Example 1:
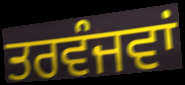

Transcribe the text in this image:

ਤਰਵੰਜਵਾਂ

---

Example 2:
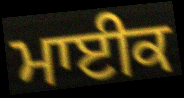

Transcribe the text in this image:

ਮਾਈਕ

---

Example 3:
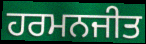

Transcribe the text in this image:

ਹਰਮਨਜੀਤ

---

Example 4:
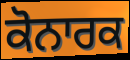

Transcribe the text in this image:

ਕੋਨਾਰਕ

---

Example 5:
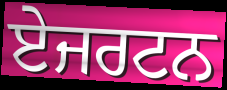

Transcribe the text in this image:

ਏਜਰਟਨ